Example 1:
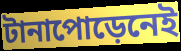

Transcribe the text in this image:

টানাপোড়েনেই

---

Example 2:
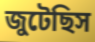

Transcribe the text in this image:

জুটেছিস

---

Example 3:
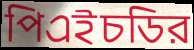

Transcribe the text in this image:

পিএইচডির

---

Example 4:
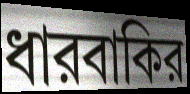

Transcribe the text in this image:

ধারবাকির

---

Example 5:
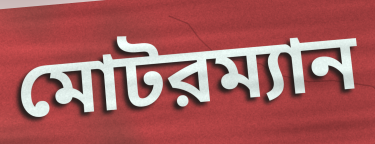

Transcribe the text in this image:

মোটরম্যান